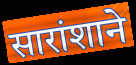
सारांशाने